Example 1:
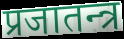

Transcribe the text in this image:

प्रजातन्त्र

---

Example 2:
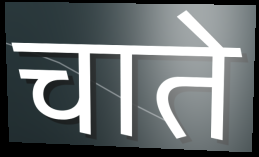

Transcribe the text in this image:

चाते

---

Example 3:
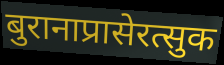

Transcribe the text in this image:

बुरानाप्रासेरत्सुक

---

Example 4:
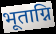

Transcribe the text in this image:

भूताग्नि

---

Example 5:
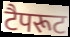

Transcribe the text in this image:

टैपरूट